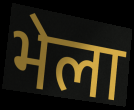
भेला